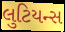
લુટિયન્સ